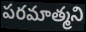
పరమాత్మని